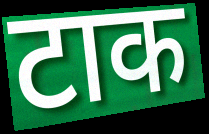
टाक